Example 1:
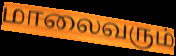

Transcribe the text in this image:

மாலைவரும்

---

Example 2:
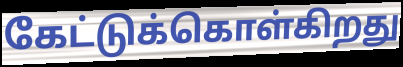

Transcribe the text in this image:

கேட்டுக்கொள்கிறது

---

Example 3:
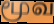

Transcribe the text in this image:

மூவ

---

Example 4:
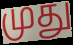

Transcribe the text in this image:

முது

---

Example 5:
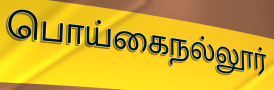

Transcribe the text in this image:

பொய்கைநல்லூர்